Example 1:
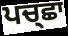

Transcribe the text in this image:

ਪਚ੍ਛਾ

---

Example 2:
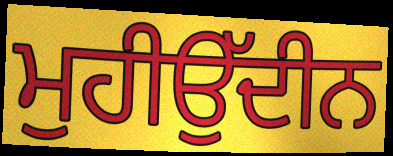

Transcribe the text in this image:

ਮੁਹੀਉੱਦੀਨ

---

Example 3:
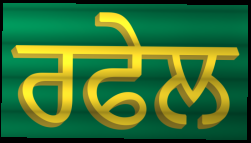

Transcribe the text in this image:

ਰਫੇਲ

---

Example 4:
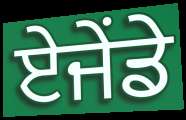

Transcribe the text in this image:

ਏਜੇਂਡੇ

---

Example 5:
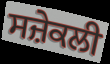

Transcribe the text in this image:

ਸਜ਼ੇਕਲੀ